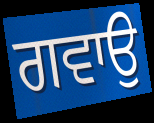
ਗਵਾਉ